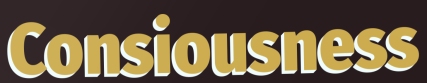
Consiousness